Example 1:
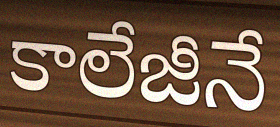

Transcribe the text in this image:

కాలేజీనే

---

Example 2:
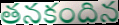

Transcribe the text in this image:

తనకందిన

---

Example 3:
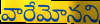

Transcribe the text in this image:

వారేమోనని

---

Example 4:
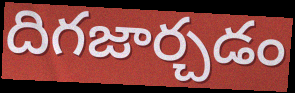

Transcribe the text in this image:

దిగజార్చడం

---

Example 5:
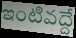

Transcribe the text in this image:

ఇంటివద్దే